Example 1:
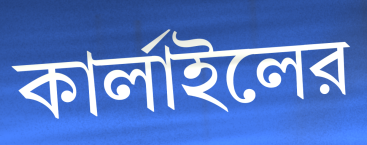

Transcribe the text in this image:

কার্লাইলের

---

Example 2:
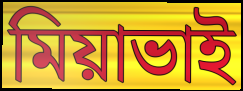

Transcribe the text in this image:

মিয়াভাই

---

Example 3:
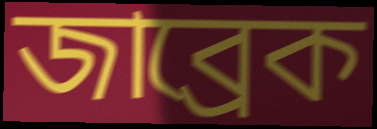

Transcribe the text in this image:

জাব্রেক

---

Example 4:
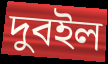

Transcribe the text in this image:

দুবইল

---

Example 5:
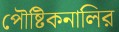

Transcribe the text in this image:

পৌষ্টিকনালির